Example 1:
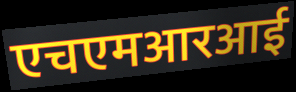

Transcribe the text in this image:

एचएमआरआई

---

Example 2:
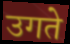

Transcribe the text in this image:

उगते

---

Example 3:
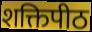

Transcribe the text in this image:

शक्तिपीठ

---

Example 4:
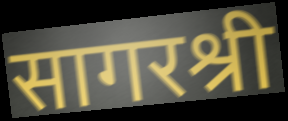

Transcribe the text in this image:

सागरश्री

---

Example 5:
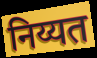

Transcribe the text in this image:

निय्यत